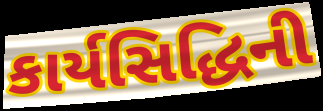
કાર્યસિદ્ધિની